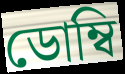
ডোম্বি